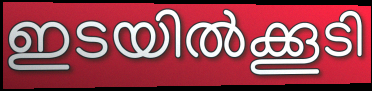
ഇടയിൽക്കൂടി